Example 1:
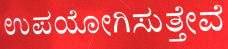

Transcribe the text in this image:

ಉಪಯೋಗಿಸುತ್ತೇವೆ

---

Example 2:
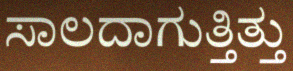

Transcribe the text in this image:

ಸಾಲದಾಗುತ್ತಿತ್ತು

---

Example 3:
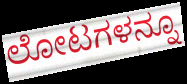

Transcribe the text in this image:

ಲೋಟಗಳನ್ನೂ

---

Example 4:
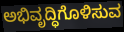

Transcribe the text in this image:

ಅಭಿವೃದ್ಧಿಗೊಳಿಸುವ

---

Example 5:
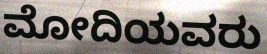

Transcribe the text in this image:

ಮೋದಿಯವರು